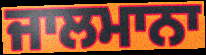
ਜਾਲਮਾਨਾ